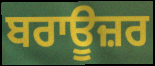
ਬਰਾਊਜ਼ਰ